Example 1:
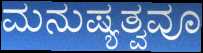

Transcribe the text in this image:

ಮನುಷ್ಯತ್ವವೂ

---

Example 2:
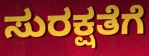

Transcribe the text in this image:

ಸುರಕ್ಷತೆಗೆ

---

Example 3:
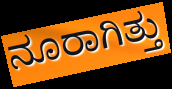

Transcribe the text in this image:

ನೂರಾಗಿತ್ತು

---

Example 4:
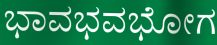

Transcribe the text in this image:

ಭಾವಭವಭೋಗ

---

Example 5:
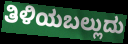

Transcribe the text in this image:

ತಿಳಿಯಬಲ್ಲುದು